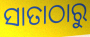
ସାତାଠାରୁ